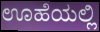
ಊಹೆಯಲ್ಲಿ